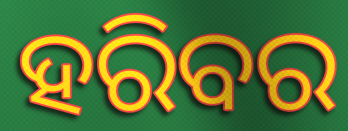
ହରିବର